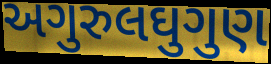
અગુરુલઘુગુણ